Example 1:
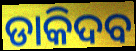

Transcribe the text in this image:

ଡାକିଦବ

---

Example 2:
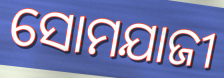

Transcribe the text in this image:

ସୋମଯାଜୀ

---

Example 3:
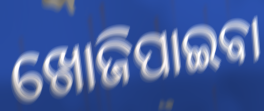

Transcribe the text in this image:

ଖୋଜିପାଇବା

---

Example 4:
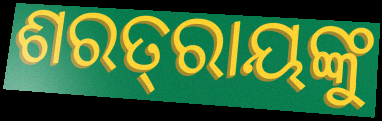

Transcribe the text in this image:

ଶରତ୍‌ରାୟଙ୍କୁ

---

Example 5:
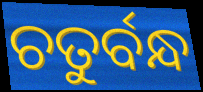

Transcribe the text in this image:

ଚତୁର୍ବନ୍ଧ